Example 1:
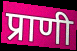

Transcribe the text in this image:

प्राणी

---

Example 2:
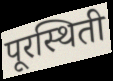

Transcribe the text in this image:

पूरस्थिती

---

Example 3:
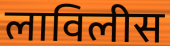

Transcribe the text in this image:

लाविलीस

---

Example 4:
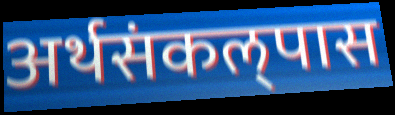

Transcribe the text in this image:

अर्थसंकल्पास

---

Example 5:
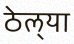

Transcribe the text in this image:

ठेल्या